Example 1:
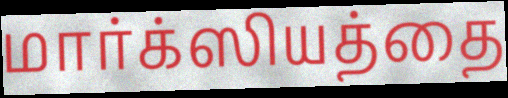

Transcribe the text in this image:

மார்க்ஸியத்தை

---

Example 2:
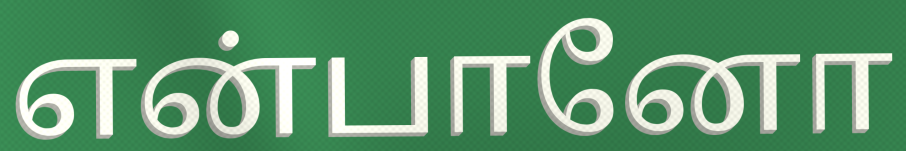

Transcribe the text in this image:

என்பானோ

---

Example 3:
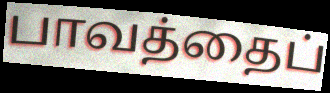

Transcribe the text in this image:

பாவத்தைப்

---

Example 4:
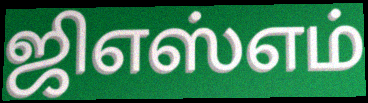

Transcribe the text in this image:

ஜிஎஸ்எம்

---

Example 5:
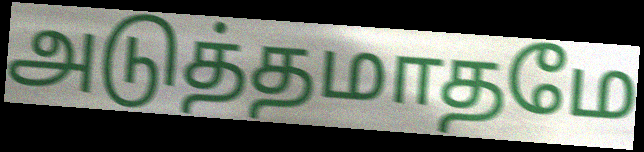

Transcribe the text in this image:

அடுத்தமாதமே